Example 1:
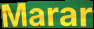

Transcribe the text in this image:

Marar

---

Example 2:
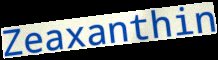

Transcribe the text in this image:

Zeaxanthin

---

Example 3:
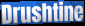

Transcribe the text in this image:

Drushtine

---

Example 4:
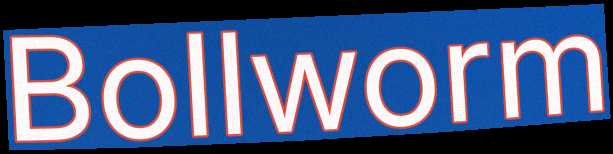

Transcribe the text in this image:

Bollworm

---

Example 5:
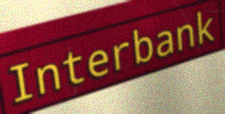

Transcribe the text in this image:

Interbank